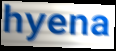
hyena